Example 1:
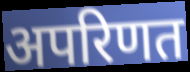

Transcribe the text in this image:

अपरिणत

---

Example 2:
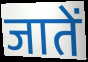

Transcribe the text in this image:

जातें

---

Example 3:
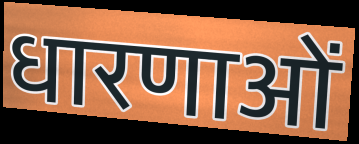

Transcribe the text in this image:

धारणाओं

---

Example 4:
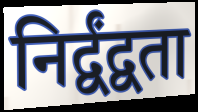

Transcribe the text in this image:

निर्द्वंद्वता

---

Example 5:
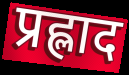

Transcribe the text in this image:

प्रह्लाद